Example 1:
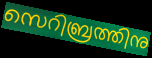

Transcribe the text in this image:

സെറിബ്രത്തിനു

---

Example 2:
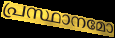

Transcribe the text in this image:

പ്രസ്ഥാനമോ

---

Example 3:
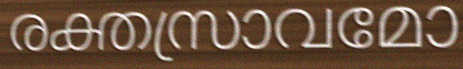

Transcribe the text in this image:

രക്തസ്രാവമോ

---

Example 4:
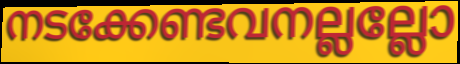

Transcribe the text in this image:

നടക്കേണ്ടവനല്ലല്ലോ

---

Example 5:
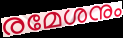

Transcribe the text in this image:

രമേശനും